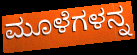
ಮೂಳೆಗಳನ್ನ